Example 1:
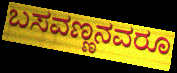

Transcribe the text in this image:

ಬಸವಣ್ಣನವರೂ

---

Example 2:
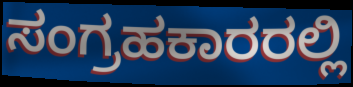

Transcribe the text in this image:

ಸಂಗ್ರಹಕಾರರಲ್ಲಿ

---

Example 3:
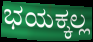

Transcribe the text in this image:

ಭಯಕ್ಕಲ್ಲ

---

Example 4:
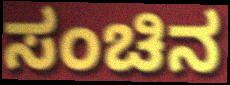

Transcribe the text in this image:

ಸಂಚಿನ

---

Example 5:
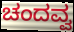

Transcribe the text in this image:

ಚಂದವ್ವ